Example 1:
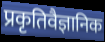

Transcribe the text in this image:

प्रकृतिवैज्ञानिक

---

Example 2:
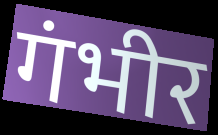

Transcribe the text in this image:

गंभीर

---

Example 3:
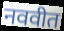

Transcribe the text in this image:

नववीत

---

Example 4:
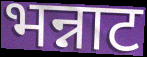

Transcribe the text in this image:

भन्नाट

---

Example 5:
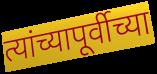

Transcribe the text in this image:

त्यांच्यापूर्वीच्या